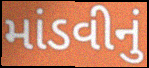
માંડવીનું